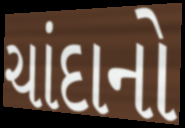
ચાંદાનો